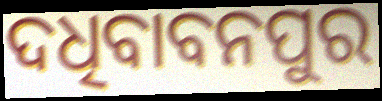
ଦଧିବାବନପୁର